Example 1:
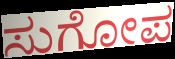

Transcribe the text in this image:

ಸುಗೋಪ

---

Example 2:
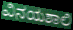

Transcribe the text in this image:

ವಿನಯಶಾಲಿ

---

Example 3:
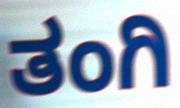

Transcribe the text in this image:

ತಂಗಿ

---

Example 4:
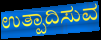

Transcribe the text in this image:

ಉತ್ಪಾದಿಸುವ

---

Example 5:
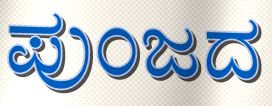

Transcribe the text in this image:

ಪುಂಜದ